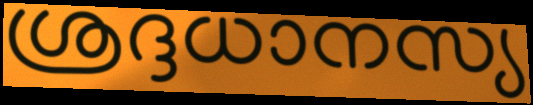
ശ്രദ്ദധാനസ്യ